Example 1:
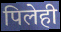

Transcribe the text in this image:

पिलेही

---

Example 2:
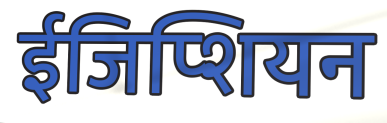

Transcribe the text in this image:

ईजिप्शियन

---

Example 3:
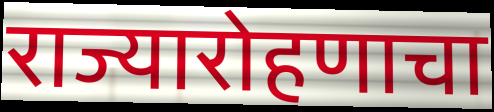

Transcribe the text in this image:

राज्यारोहणाचा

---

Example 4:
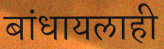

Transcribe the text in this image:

बांधायलाही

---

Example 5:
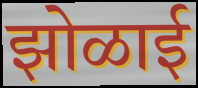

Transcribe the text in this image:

झोळाई